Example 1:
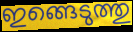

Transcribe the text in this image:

ഇങ്ങെടുത്തു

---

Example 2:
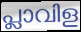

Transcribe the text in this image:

പ്ലാവിള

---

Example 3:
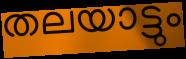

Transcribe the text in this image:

തലയാട്ടും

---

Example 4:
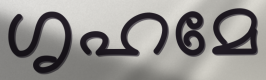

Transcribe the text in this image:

ഗൃഹമേ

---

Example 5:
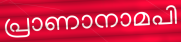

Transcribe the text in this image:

പ്രാണാനാമപി